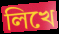
লিখে